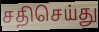
சதிசெய்து